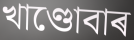
খাণ্ডোবাৰ